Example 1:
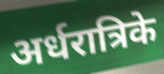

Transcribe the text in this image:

अर्धरात्रिके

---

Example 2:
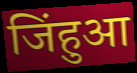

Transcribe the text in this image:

जिंहुआ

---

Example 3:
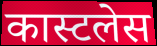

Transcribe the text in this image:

कास्टलेस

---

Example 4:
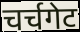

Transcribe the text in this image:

चर्चगेट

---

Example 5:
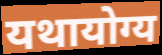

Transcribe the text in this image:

यथायोग्य